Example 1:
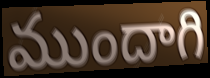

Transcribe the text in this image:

ముందాగి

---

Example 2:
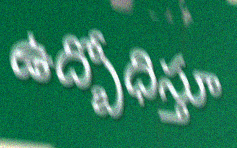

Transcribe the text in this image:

ఉద్బోధిస్తూ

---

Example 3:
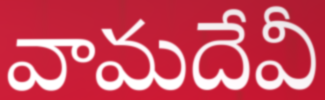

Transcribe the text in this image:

వామదేవీ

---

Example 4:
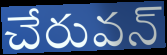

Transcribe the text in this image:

చేరువన్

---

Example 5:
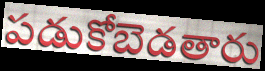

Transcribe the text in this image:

పడుకోబెడతారు